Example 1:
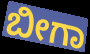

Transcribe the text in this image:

ಬೀಗಾ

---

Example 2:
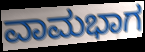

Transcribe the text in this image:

ವಾಮಭಾಗ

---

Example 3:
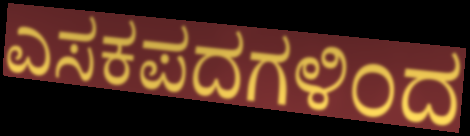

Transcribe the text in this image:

ಎಸಕಪದಗಳಿಂದ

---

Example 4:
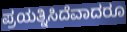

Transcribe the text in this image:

ಪ್ರಯತ್ನಿಸಿದೆವಾದರೂ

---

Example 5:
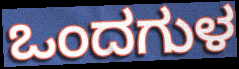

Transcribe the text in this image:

ಒಂದಗುಳ